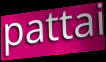
pattai